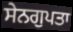
ਸੇਨਗੁਪਤਾ